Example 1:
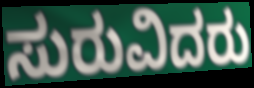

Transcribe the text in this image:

ಸುರುವಿದರು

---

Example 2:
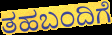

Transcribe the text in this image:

ತಹಬಂದಿಗೆ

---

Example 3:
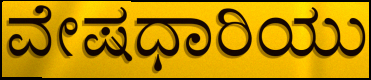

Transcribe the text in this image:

ವೇಷಧಾರಿಯು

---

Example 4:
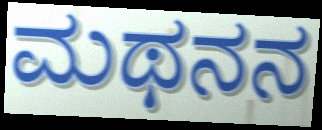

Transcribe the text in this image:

ಮಥನನ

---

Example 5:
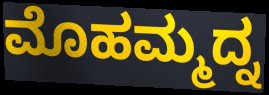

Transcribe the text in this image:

ಮೊಹಮ್ಮದ್ನ